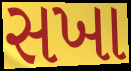
સખા